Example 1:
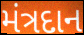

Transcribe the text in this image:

મંત્રદાન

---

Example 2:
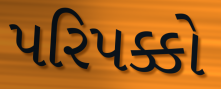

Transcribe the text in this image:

પરિપક્કો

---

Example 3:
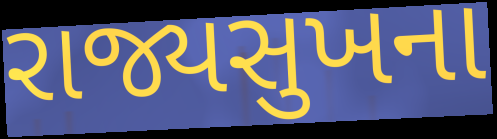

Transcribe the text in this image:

રાજ્યસુખના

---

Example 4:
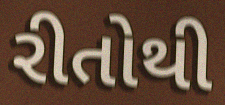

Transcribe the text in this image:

રીતોથી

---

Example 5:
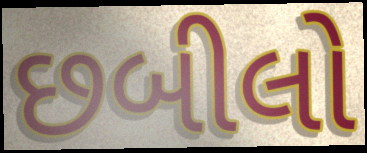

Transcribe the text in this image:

છબીલો